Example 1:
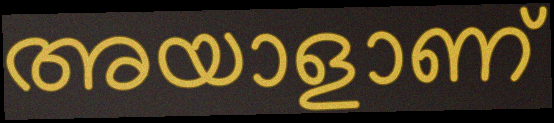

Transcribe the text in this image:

അയാളാണ്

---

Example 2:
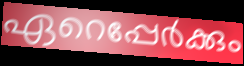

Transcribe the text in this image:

ഏറെപ്പേർക്കും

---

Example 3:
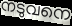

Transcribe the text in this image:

നടുവനെ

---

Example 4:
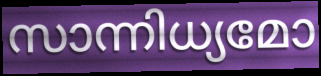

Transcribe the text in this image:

സാന്നിധ്യമോ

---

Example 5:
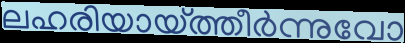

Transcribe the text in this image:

ലഹരിയായ്ത്തീർന്നുവോ